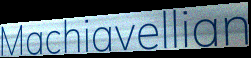
Machiavellian